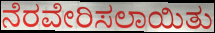
ನೆರವೇರಿಸಲಾಯಿತು